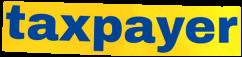
taxpayer